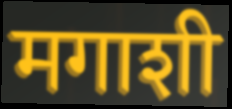
मगाशी